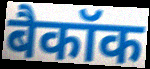
बैकॉक